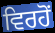
ਵਿਰਹੋਂ